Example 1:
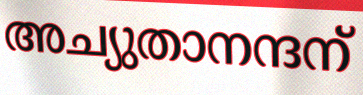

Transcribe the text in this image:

അച്യുതാനന്ദന്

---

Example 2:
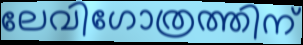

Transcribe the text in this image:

ലേവിഗോത്രത്തിന്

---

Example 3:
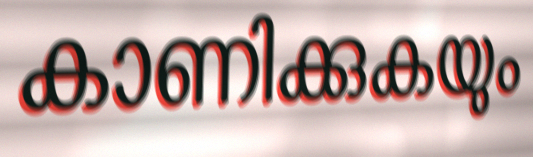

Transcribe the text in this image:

കാണിക്കുകയും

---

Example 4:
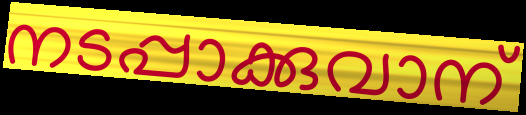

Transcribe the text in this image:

നടപ്പാക്കുവാന്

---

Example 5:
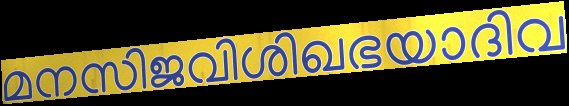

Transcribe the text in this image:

മനസിജവിശിഖഭയാദിവ